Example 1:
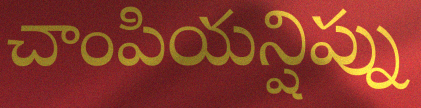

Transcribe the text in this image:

చాంపియన్షిప్ను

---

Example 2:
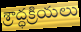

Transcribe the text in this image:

శ్రాద్ధక్రియలు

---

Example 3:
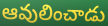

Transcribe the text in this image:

ఆవులించాడు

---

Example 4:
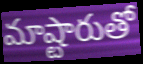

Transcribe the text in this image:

మాష్టారుతో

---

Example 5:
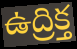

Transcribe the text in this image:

ఉద్రిక్త